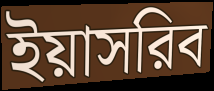
ইয়াসরিব